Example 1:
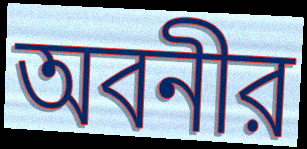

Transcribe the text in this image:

অবনীর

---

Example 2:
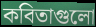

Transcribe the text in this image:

কবিতাগুলো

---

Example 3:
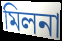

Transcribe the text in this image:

মিলনা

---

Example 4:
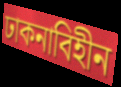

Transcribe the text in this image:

ঢাকনাবিহীন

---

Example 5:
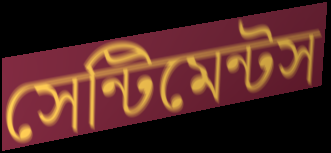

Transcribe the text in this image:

সেন্টিমেন্টস